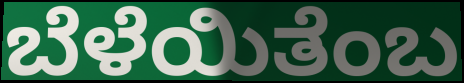
ಬೆಳೆಯಿತೆಂಬ